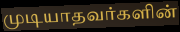
முடியாதவர்களின்